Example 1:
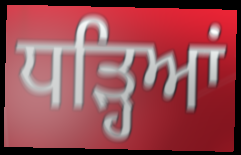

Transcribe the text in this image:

ਧੜ੍ਹਿਆਂ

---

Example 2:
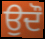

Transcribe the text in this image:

ਉਦੌ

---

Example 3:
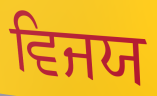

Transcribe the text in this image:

ਵਿਜਯ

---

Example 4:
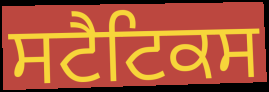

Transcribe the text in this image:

ਸਟੈਟਿਕਸ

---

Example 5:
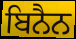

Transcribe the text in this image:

ਬਿਨੈਨ